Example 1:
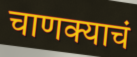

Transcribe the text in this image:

चाणक्याचं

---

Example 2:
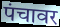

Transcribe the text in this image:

पंचावर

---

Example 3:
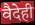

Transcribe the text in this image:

वैदेही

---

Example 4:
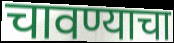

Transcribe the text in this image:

चावण्याचा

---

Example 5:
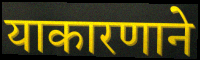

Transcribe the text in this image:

याकारणाने